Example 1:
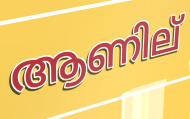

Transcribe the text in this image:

ആണില്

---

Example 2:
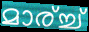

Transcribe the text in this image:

മാര്ച്ച്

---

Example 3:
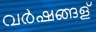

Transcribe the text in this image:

വർഷങ്ങള്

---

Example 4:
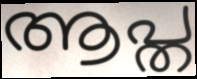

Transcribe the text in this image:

ആപ്ത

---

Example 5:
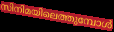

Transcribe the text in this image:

സിനിമയിലെത്തുമ്പോൾ